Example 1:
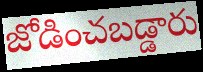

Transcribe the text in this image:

జోడించబడ్డారు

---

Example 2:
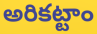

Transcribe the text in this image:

అరికట్టాం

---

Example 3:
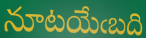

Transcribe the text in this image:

నూటయేఁబది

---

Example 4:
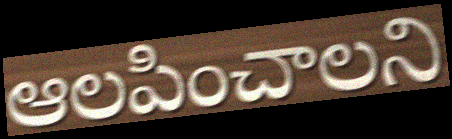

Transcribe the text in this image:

ఆలపించాలని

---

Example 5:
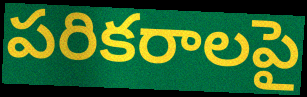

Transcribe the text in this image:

పరికరాలపై